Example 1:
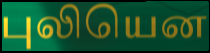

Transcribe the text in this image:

புலியென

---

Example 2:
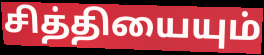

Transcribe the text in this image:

சித்தியையும்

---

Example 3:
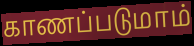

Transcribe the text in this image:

காணப்படுமாம்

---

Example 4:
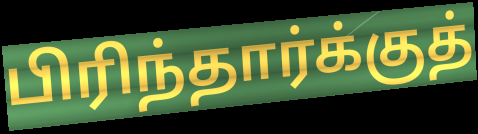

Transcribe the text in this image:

பிரிந்தார்க்குத்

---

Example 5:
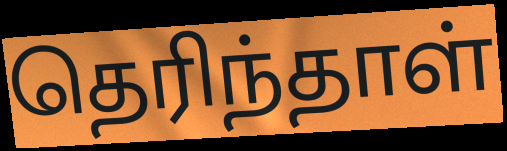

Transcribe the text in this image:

தெரிந்தாள்